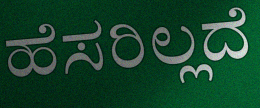
ಹೆಸರಿಲ್ಲದೆ